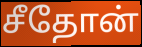
சீதோன்